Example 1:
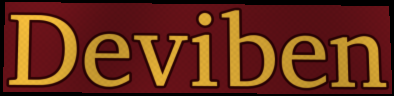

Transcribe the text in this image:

Deviben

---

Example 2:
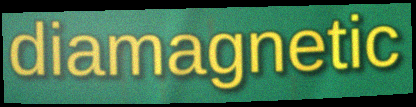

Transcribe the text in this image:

diamagnetic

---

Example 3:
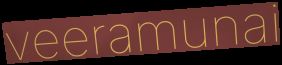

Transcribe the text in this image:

veeramunai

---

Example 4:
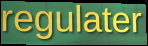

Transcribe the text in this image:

regulater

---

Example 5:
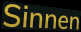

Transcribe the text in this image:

Sinnen